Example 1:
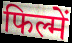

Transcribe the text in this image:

फिल्‍में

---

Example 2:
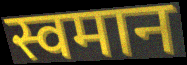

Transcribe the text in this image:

स्वमान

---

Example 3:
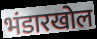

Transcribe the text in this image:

भंडारखोल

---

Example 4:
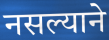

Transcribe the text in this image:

नसल्याने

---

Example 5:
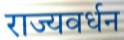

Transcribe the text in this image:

राज्‍यवर्धन